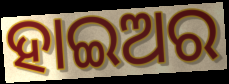
ହାଇଅର